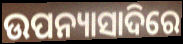
ଉପନ୍ୟାସାଦିରେ